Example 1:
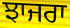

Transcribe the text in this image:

ਝਾਜਰਾ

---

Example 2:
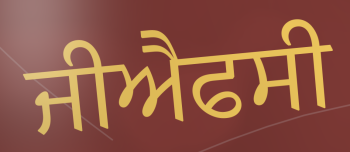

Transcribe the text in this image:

ਜੀਐਫਸੀ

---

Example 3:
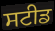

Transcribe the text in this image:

ਸਟੀਡ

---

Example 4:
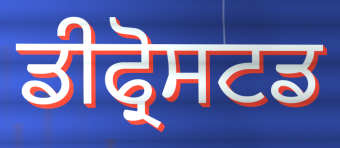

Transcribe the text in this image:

ਡੀਫ੍ਰੋਸਟਡ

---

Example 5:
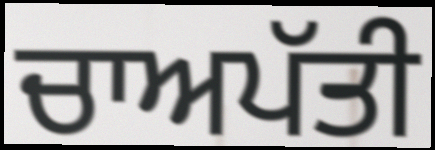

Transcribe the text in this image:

ਚਾਅਪੱਤੀ